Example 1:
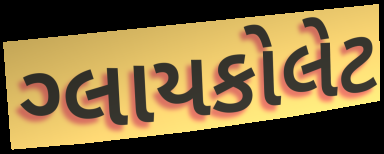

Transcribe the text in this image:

ગ્લાયકોલેટ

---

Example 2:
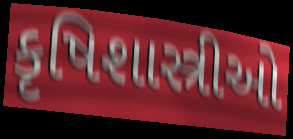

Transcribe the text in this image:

કૃષિશાસ્ત્રીઓ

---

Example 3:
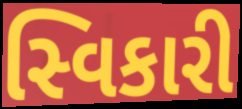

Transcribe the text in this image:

સ્વિકારી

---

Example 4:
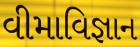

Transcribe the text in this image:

વીમાવિજ્ઞાન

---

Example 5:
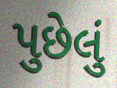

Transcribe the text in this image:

પુછેલું